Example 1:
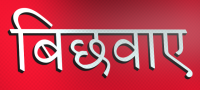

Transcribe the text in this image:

बिछवाए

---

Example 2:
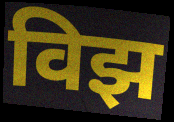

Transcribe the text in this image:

विझ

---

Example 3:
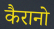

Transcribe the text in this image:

कैरानो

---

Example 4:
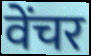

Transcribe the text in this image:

वेंचर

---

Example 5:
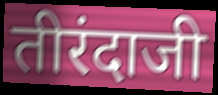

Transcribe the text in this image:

तीरंदाजी